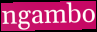
ngambo